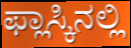
ಫ್ಲಾಸ್ಕಿನಲ್ಲಿ